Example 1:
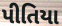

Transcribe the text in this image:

પીતિયા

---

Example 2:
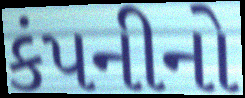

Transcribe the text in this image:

કંપનીનો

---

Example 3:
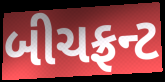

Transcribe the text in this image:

બીચફ્રન્ટ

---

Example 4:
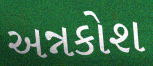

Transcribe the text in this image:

અન્નકોશ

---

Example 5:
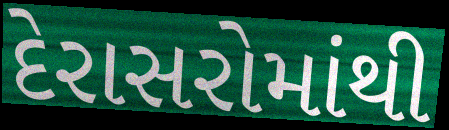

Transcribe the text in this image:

દેરાસરોમાંથી